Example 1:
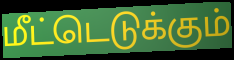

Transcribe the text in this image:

மீட்டெடுக்கும்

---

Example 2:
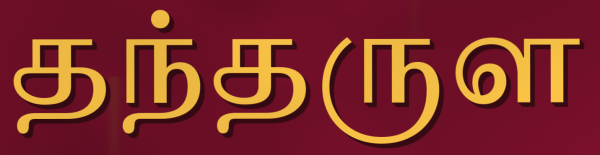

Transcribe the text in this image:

தந்தருள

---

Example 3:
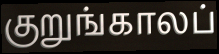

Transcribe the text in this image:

குறுங்காலப்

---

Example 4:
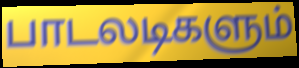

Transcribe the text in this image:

பாடலடிகளும்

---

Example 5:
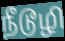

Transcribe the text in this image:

நீடூழி